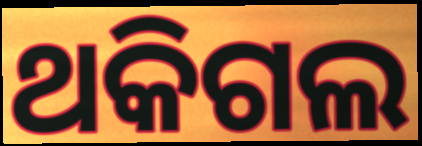
ଥକିଗଲ